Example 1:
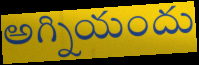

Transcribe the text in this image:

అగ్నియందు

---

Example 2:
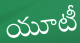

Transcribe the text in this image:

యూటీ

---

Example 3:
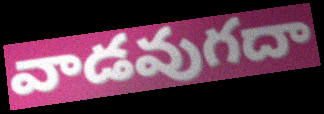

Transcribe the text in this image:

వాడవుగదా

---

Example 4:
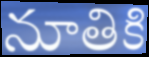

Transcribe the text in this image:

నూతికి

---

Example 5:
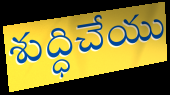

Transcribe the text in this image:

శుద్ధిచేయు